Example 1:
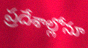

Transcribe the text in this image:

ప్రదేశాల్లోనూ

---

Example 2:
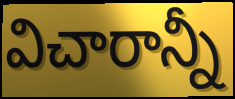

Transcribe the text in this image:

విచారాన్నీ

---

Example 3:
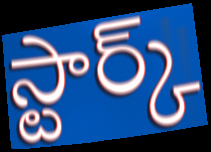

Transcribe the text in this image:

స్టార్క్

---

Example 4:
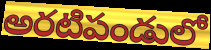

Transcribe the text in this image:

అరటిపండులో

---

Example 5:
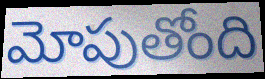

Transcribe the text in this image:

మోపుతోంది